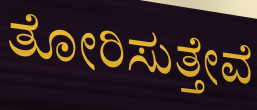
ತೋರಿಸುತ್ತೇವೆ